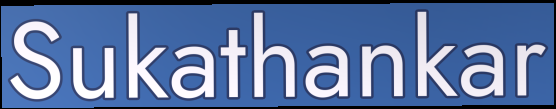
Sukathankar